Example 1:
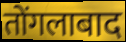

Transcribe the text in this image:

तोंगलाबाद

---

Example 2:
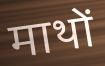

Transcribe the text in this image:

माथों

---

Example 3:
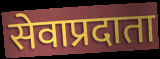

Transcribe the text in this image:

सेवाप्रदाता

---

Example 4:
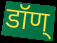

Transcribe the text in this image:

डॉण्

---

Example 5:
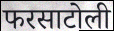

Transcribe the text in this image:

फरसाटोली